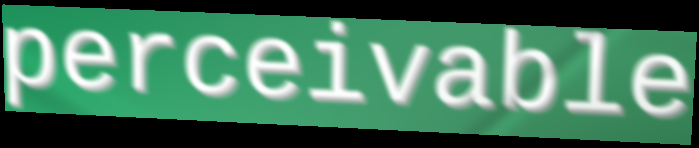
perceivable